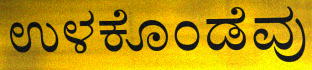
ಉಳಕೊಂಡೆವು